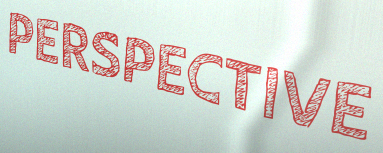
PERSPECTIVE